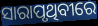
ସାରାପୃଥିବୀରେ